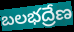
బలభద్రేణ